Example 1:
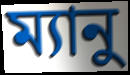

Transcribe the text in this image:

ম্যানু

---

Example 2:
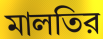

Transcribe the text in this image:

মালতির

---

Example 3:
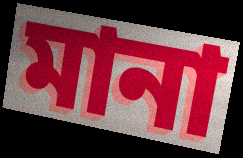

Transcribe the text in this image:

মানা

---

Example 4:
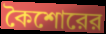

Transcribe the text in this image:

কৈশোরের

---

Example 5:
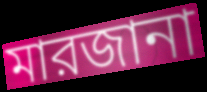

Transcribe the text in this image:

মারজানা